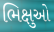
ભિક્ષુઓ